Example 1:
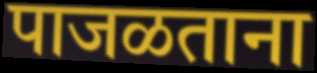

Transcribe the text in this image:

पाजळताना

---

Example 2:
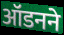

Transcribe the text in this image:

ऑडनने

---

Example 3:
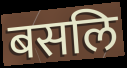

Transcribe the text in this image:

बसलि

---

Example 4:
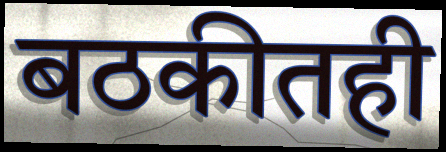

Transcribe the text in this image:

बठकीतही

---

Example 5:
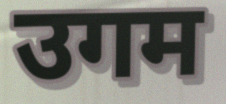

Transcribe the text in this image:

उगम